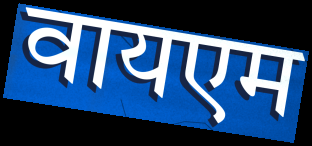
वायएम